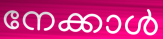
നേക്കാൾ